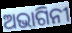
ଅଭାଗିନୀ